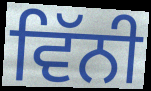
ਵਿੱਨੀ